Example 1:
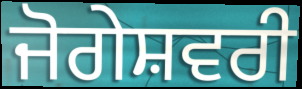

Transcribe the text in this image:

ਜੋਗੇਸ਼ਵਰੀ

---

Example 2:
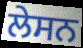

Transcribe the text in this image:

ਲੇਸਨ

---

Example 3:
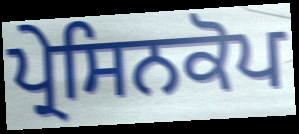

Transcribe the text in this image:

ਪ੍ਰੇਸਿਨਕੋਪ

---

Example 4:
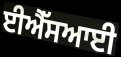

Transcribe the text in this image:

ਈਐੱਸਆਈ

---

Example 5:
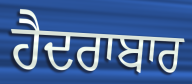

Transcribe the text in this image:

ਹੈਦਰਾਬਾਰ